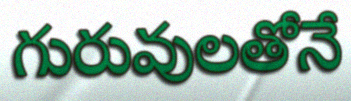
గురువులతోనే